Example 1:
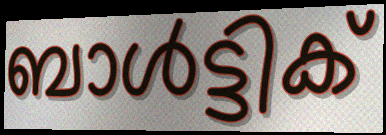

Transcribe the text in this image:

ബാൾട്ടിക്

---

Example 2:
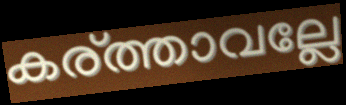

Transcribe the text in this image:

കര്ത്താവല്ലേ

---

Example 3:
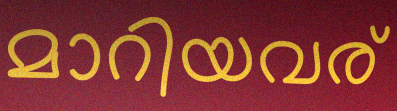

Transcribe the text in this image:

മാറിയവര്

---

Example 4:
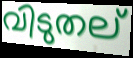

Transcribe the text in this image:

വിടുതല്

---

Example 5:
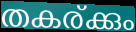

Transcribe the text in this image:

തകര്ക്കും